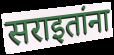
सराइतांना